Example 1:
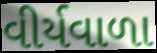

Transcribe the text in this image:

વીર્યવાળા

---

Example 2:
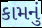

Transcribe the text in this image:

કામનું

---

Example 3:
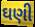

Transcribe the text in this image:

ઘણી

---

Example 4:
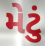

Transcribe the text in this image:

મેટું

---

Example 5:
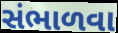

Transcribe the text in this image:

સંભાળવા